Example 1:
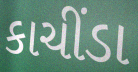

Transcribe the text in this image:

કાચીંડા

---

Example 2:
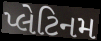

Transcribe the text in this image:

પ્લેટિનમ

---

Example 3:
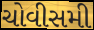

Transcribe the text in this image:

ચોવીસમી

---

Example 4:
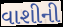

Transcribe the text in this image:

વાશીની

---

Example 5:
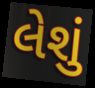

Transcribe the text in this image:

લેશું